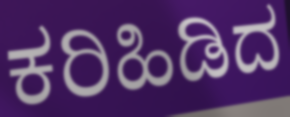
ಕರಿಹಿಡಿದ